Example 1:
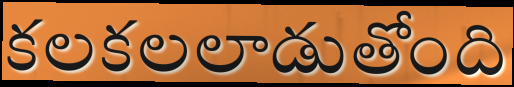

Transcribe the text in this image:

కలకలలాడుతోంది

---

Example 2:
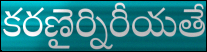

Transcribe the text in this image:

కరణైర్నిరీయతే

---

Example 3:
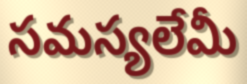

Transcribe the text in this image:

సమస్యలేమీ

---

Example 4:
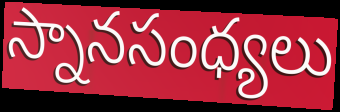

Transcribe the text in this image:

స్నానసంధ్యలు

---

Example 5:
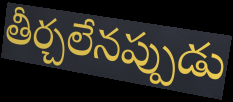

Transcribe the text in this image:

తీర్చలేనప్పుడు